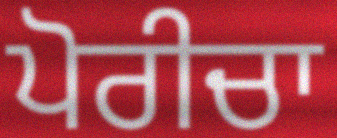
ਪੋਰੀਚਾ